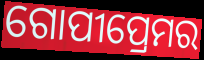
ଗୋପୀପ୍ରେମର